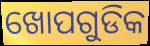
ଖୋପଗୁଡିକ